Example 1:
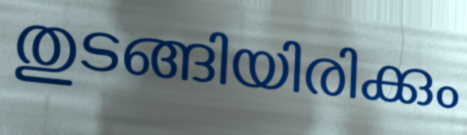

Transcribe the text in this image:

തുടങ്ങിയിരിക്കും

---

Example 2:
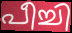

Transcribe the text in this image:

പീച്ചി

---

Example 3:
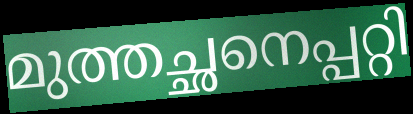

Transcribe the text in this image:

മുത്തച്ഛനെപ്പറ്റി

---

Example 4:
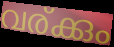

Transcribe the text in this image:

വര്ക്കും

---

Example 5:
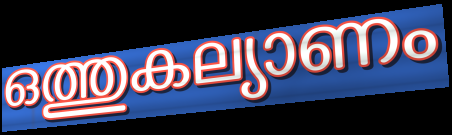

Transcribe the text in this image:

ഒത്തുകല്യാണം